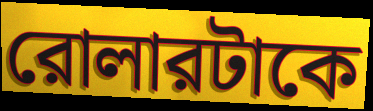
রোলারটাকে